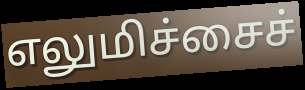
எலுமிச்சைச்